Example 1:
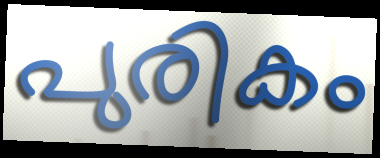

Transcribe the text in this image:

പുരികം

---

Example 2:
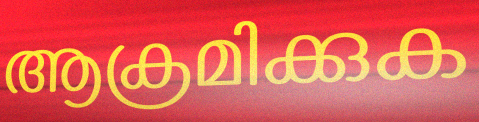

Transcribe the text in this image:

ആക്രമിക്കുക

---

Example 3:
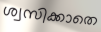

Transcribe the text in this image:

ശ്വസിക്കാതെ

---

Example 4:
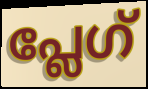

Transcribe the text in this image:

പ്ലേഗ്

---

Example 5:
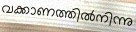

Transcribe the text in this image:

വക്കാണത്തിൽനിന്നു